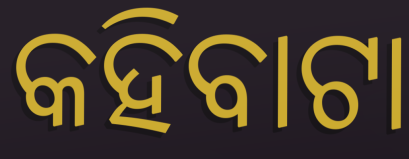
କହିବାଟା